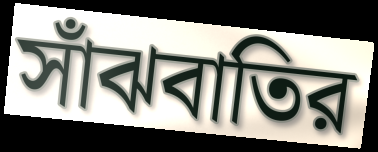
সাঁঝবাতির